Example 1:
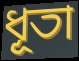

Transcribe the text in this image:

ধূতা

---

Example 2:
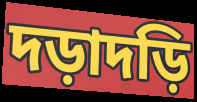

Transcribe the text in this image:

দড়াদড়ি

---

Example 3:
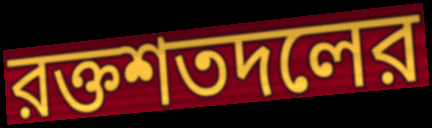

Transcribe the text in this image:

রক্তশতদলের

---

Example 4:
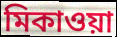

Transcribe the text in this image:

মিকাওয়া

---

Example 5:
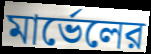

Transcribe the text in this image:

মার্ভেলের